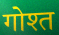
गोश्‍त